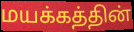
மயக்கத்தின்